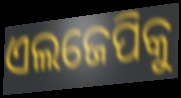
ଏଲଜେପିକୁ